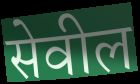
सेवील